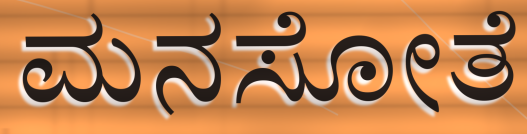
ಮನಸೋತೆ